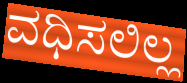
ವಧಿಸಲಿಲ್ಲ